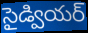
సైడ్వియర్